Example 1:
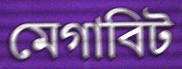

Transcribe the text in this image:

মেগাবিট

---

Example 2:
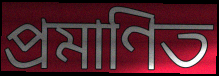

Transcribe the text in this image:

প্রমাণিত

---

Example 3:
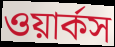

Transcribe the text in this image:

ওয়ার্কস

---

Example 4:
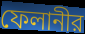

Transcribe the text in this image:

ফেলানীর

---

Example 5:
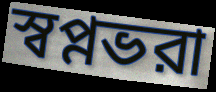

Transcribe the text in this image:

স্বপ্নভরা